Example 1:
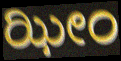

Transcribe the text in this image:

ಝೀಂ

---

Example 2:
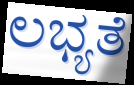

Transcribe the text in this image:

ಲಭ್ಯತೆ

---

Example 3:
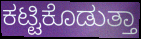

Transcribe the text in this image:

ಕಟ್ಟಿಕೊಡುತ್ತಾ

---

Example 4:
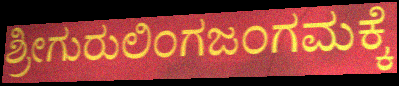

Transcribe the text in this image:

ಶ್ರೀಗುರುಲಿಂಗಜಂಗಮಕ್ಕೆ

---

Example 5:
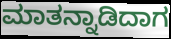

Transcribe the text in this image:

ಮಾತನ್ನಾಡಿದಾಗ